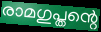
രാമഗുപ്തന്റെ